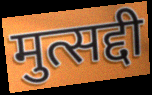
मुत्सद्दी